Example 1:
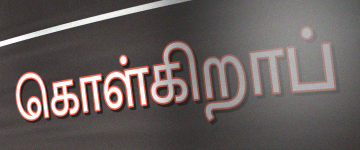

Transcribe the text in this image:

கொள்கிறாப்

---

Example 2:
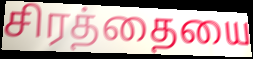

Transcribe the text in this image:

சிரத்தையை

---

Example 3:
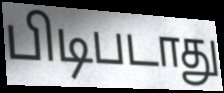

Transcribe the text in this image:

பிடிபடாது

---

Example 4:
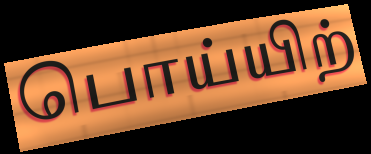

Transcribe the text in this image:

பொய்யிற்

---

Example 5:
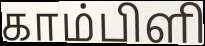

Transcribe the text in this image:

காம்பிளி